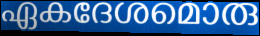
ഏകദേശമൊരു